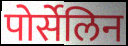
पोर्सेलिन